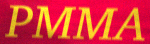
PMMA